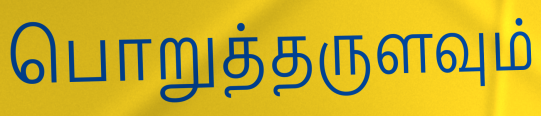
பொறுத்தருளவும்